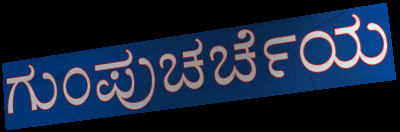
ಗುಂಪುಚರ್ಚೆಯ